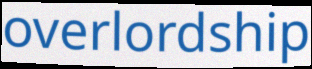
overlordship